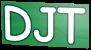
DJT